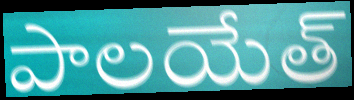
పాలయేత్